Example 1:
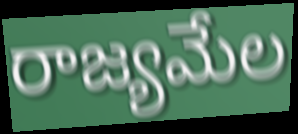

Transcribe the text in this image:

రాజ్యమేల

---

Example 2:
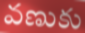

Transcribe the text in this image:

వణుకు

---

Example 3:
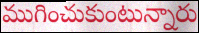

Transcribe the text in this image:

ముగించుకుంటున్నారు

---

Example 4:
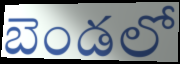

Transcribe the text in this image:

బెండలో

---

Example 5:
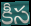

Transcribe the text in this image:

కీస